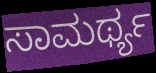
ಸಾಮರ್ಥ್ಯ